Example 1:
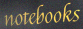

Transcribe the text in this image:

notebooks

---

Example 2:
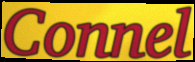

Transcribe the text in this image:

Connel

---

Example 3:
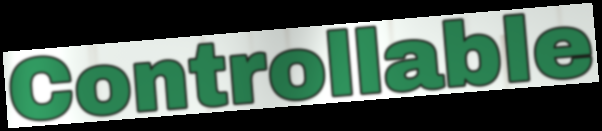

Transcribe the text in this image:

Controllable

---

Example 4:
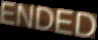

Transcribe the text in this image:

ENDED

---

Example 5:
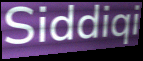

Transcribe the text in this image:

Siddiqi